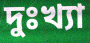
দুঃখ্যা